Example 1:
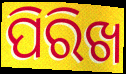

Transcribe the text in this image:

ପିରିଖ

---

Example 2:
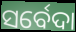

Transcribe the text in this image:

ସର୍ବେଦା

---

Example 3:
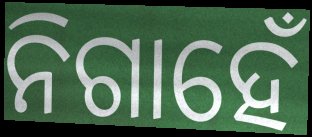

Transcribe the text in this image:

ନିଗାହେଁ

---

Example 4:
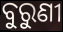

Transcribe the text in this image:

ବୁରୁଣୀ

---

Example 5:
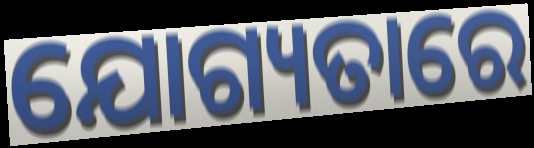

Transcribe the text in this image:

ଯୋଗ୍ୟତାରେ